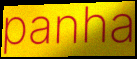
panha